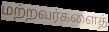
மற்றவர்களைத்